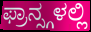
ಫ್ರಾನ್ಸ್ಗಳಲ್ಲಿ